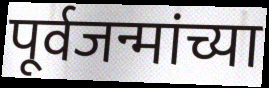
पूर्वजन्मांच्या